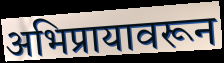
अभिप्रायावरून